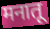
मनातू